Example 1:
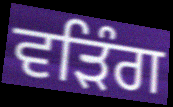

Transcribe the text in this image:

ਵੜਿੰਗ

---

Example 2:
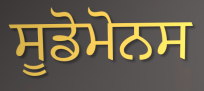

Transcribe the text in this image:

ਸੂਡੋਮੋਨਸ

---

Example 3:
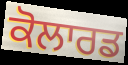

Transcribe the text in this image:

ਕੋਲਾਰਡ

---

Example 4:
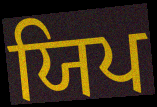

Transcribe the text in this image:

ਯਿਪ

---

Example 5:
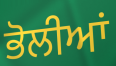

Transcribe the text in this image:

ਭੋਲੀਆਂ